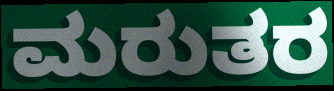
ಮರುತರ